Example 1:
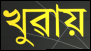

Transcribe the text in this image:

খুৱায়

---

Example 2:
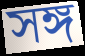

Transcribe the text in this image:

সঙ্গ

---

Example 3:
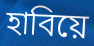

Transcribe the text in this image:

হাবিয়ে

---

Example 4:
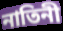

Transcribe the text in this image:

নাতিনী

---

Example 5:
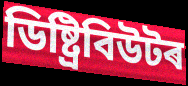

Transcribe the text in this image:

ডিষ্ট্ৰিবিউটৰ